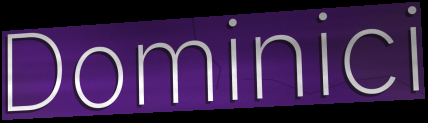
Dominici